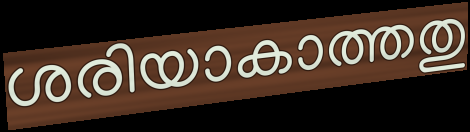
ശരിയാകാത്തതു